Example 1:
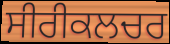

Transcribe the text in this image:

ਸੀਰੀਕਲਚਰ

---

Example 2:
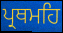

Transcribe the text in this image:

ਪ੍ਰਥਮਹਿ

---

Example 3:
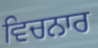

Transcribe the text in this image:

ਵਿਚਨਾਰ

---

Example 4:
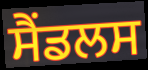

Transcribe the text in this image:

ਸੈਂਡਲਸ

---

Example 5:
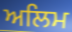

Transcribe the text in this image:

ਅਲਿਮ